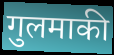
गुलमाकी